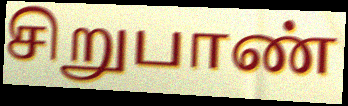
சிறுபாண்